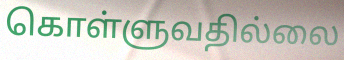
கொள்ளுவதில்லை